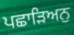
ਪਛਾੜਿਅਨੁ